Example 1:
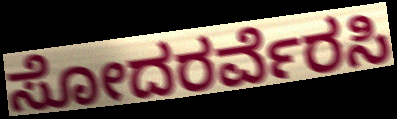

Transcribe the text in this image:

ಸೋದರರ್ವೆರಸಿ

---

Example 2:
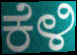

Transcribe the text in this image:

ಕೆಳಿ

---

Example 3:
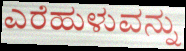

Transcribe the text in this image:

ಎರೆಹುಳುವನ್ನು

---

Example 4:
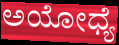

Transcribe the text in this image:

ಅಯೋಧ್ಯೆ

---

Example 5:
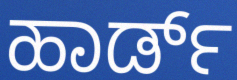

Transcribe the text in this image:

ಹಾರ್ಡ್